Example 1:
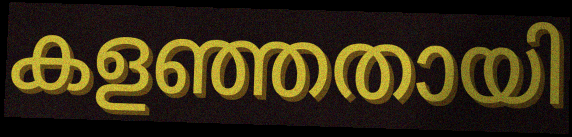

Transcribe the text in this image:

കളഞ്ഞതായി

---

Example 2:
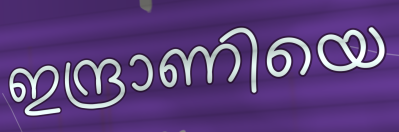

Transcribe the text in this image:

ഇന്ദ്രാണിയെ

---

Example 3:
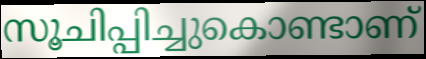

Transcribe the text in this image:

സൂചിപ്പിച്ചുകൊണ്ടാണ്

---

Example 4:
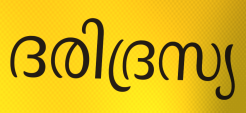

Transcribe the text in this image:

ദരിദ്രസ്യ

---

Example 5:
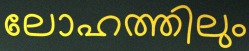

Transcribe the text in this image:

ലോഹത്തിലും